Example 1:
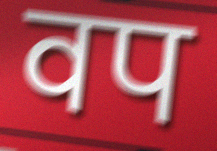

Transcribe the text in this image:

वप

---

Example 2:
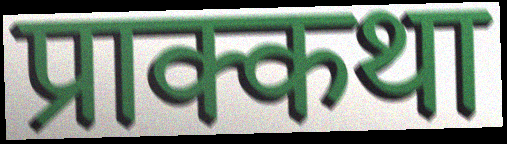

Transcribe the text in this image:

प्राक्कथा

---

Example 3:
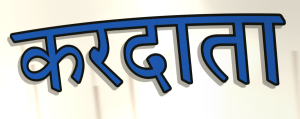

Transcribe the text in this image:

करदाता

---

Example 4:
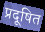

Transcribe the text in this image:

प्रदूषित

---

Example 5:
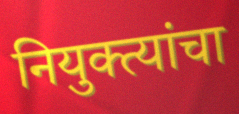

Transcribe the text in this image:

नियुक्त्यांचा